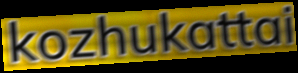
kozhukattai